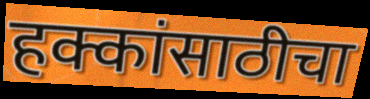
हक्कांसाठीचा